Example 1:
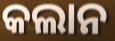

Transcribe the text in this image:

କଲାନ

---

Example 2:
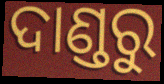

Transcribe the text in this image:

ଦାଣ୍ଡରୁ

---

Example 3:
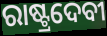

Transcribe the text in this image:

ରାଷ୍ଟ୍ରଦେବୀ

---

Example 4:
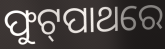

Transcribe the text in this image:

ଫୁଟ୍‍ପାଥରେ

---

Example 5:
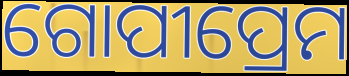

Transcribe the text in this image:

ଗୋପୀପ୍ରେମ